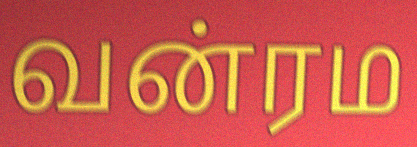
வன்ரம